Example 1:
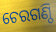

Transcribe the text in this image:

ଚେରଗଣ୍ଠି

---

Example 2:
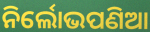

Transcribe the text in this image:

ନିର୍ଲୋଭପଣିଆ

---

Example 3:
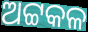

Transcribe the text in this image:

ଅଟ୍ଟକଳ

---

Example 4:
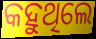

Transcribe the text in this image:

କହୁଥିଲେ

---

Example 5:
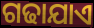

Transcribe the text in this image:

ଗଢାଯାଏ